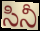
సినీ